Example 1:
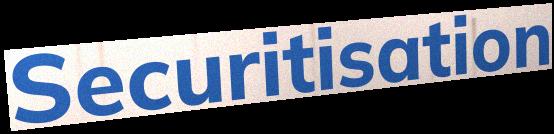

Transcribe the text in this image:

Securitisation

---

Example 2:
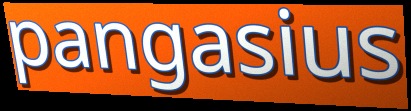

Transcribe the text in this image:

pangasius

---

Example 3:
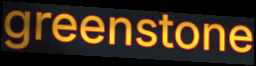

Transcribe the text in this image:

greenstone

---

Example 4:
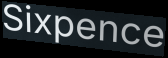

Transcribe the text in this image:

Sixpence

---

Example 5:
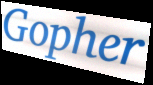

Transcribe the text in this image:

Gopher